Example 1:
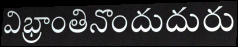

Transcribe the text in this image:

విభ్రాంతినొందుదురు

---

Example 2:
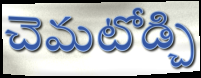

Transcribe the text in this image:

చెమటోడ్చి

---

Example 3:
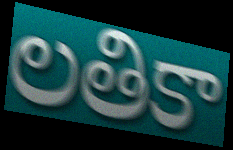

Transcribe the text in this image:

లతికా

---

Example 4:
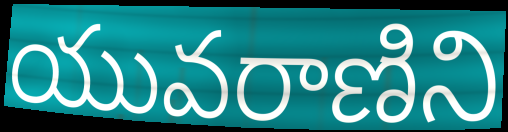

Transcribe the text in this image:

యువరాణిని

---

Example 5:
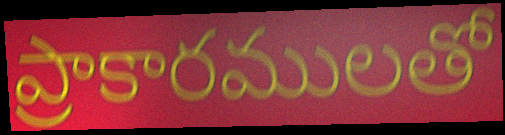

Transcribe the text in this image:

ప్రాకారములతో